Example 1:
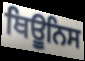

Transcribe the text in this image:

ਥਿਊਨਿਸ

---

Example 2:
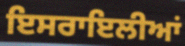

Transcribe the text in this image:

ਇਸਰਾਇਲੀਆਂ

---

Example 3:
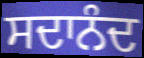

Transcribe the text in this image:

ਸਦਾਨੰਦ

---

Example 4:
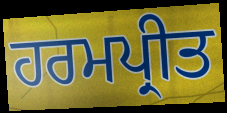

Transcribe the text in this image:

ਹਰਮਪ੍ਰੀਤ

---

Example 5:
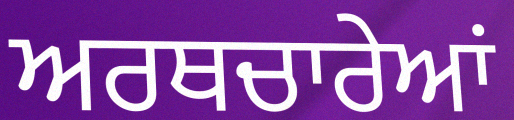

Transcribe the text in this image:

ਅਰਥਚਾਰੇਆਂ